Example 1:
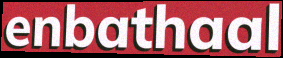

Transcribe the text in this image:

enbathaal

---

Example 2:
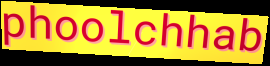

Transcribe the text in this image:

phoolchhab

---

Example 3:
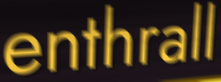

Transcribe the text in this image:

enthrall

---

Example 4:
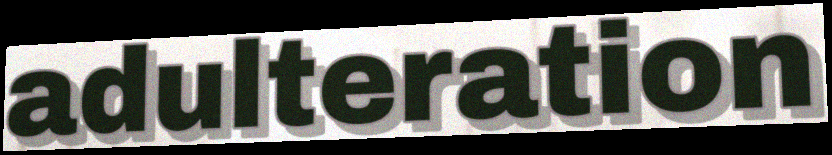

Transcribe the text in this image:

adulteration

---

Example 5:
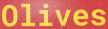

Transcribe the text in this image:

Olives